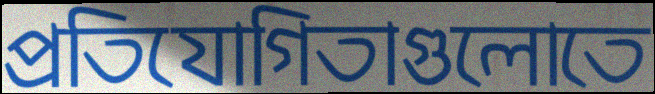
প্রতিযোগিতাগুলোতে